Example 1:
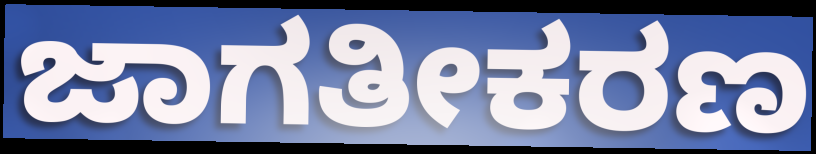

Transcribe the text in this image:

ಜಾಗತೀಕರಣ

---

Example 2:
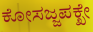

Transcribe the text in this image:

ಕೋಸಜ್ಜಪಕ್ಖೇ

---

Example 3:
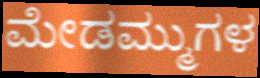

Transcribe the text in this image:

ಮೇಡಮ್ಮುಗಳ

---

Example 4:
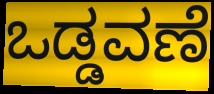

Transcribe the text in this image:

ಒಡ್ಡವಣೆ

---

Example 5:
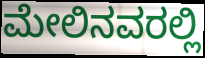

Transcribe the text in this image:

ಮೇಲಿನವರಲ್ಲಿ